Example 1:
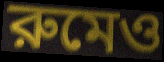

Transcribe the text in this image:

রুমেও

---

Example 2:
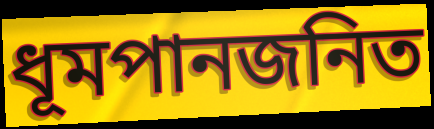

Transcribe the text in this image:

ধূমপানজনিত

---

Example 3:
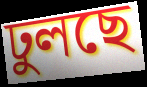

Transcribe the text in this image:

ঢুলছে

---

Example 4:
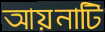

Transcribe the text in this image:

আয়নাটি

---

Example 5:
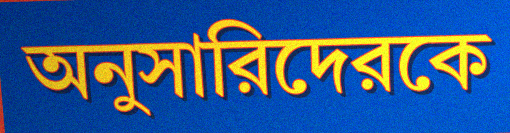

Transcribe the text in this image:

অনুসারিদেরকে